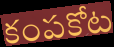
కంపకోట